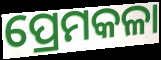
ପ୍ରେମକଳା